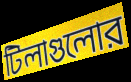
টিলাগুলোর